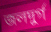
জলদুর্গ